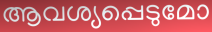
ആവശ്യപ്പെടുമോ